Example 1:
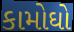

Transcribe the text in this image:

કામોઘો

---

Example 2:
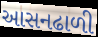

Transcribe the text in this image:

આસનઢાળી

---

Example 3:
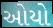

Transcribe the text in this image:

ઓયો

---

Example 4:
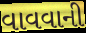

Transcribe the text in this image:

વાવવાની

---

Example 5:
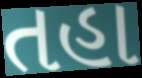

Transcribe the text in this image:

તહા